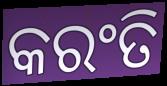
କରଂତି